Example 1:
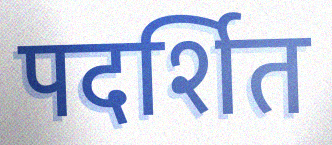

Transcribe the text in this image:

पदर्शित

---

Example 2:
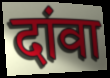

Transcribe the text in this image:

दांवा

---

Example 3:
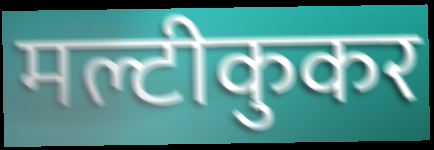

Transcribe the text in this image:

मल्टीकुकर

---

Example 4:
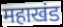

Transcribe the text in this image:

महाखंड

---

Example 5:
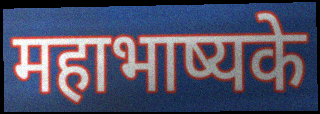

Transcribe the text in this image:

महाभाष्यके